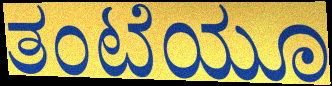
ತಂಟೆಯೂ